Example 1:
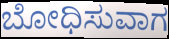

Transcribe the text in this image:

ಬೋಧಿಸುವಾಗ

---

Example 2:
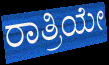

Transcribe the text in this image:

ರಾತ್ರಿಯೇ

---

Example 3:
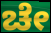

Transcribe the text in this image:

ಚೇ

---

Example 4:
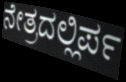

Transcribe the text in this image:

ನೇತ್ರದಲ್ಲಿರ್ಪ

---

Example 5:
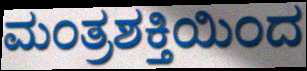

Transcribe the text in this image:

ಮಂತ್ರಶಕ್ತಿಯಿಂದ